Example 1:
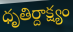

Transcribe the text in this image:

ధృతిర్దాక్ష్యం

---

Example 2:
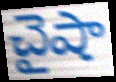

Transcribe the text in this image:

చైషా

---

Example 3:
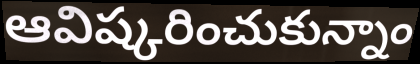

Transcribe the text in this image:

ఆవిష్కరించుకున్నాం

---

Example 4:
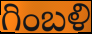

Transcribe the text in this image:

గింబళి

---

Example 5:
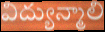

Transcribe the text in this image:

విద్యున్మాలి